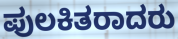
ಪುಲಕಿತರಾದರು